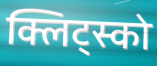
क्लिट्स्को